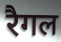
रैगल